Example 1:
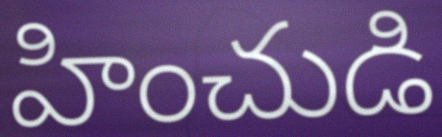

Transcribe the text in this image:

హించుడి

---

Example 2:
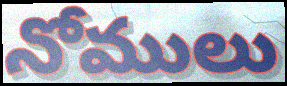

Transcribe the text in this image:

నోములు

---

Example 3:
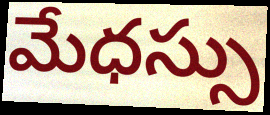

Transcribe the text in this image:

మేధస్సు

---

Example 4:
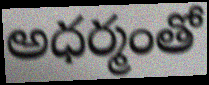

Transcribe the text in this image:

అధర్మంతో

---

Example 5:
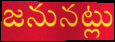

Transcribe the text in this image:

జనునట్లు